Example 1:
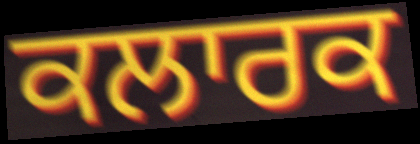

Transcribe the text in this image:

ਕਲਾਰਕ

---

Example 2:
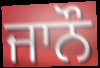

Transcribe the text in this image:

ਜਾਨੌ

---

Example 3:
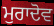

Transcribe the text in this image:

ਮੁਰਾਦੋਵ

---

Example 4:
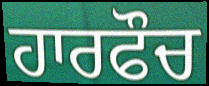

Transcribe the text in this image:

ਹਾਰਫੌਚ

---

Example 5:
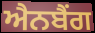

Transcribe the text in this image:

ਐਨਬੈਂਗ